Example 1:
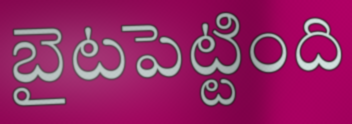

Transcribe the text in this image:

బైటపెట్టింది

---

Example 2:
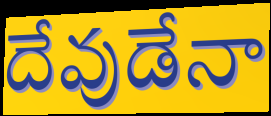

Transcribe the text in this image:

దేవుడేనా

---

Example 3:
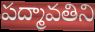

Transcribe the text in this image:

పద్మావతిని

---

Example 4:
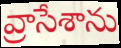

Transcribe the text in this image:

వ్రాసేశాను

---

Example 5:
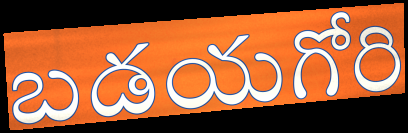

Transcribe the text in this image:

బడయగోరి